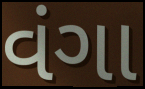
વંગા